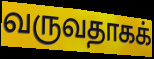
வருவதாகக்